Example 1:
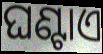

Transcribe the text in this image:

ଘଣ୍ଟାଏ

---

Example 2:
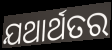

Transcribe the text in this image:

ଯଥାର୍ଥତର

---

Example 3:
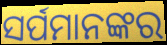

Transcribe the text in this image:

ସର୍ପମାନଙ୍କର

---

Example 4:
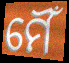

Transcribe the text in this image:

ମୈଁ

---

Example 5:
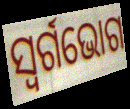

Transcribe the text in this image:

ସ୍ୱର୍ଗଭୋଗ